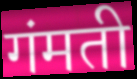
गंमती